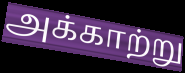
அக்காற்று